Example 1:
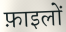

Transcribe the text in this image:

फ़ाइलों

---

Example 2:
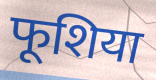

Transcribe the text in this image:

फूशिया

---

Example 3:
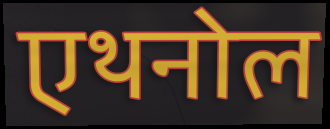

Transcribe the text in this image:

एथनोल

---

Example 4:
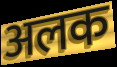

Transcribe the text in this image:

अलक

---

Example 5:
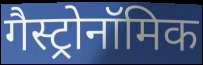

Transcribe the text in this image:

गैस्ट्रोनॉमिक